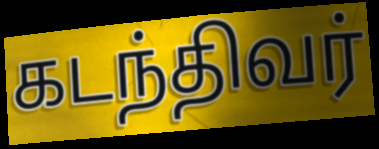
கடந்திவர்